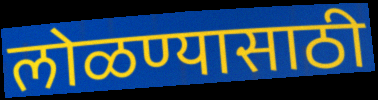
लोळण्यासाठी